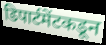
डिपार्टमेंटकडून